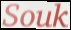
Souk